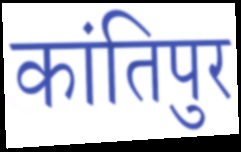
कांतिपुर